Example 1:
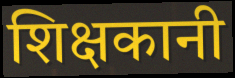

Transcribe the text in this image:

शिक्षकानी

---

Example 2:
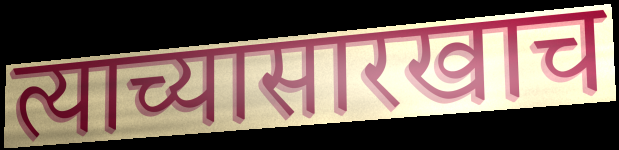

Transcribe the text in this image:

त्याच्यासारखाच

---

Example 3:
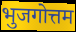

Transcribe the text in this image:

भुजगोत्तम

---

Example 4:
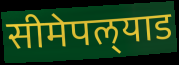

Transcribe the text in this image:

सीमेपल्याड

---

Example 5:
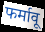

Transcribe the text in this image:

फर्मावू